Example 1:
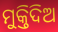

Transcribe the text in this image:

ମୁକ୍ତିଦିଅ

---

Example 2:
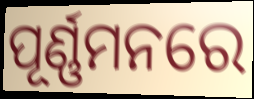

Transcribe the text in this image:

ପୂର୍ଣ୍ଣମନରେ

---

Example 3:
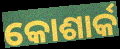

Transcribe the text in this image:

କୋଶାର୍କ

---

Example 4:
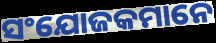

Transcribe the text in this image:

ସଂଯୋଜକମାନେ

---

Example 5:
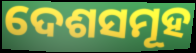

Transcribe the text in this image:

ଦେଶସମୂହ